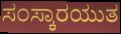
ಸಂಸ್ಕಾರಯುತ